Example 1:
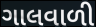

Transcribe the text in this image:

ગાલવાળી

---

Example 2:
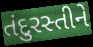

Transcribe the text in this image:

તંદુરસ્તીને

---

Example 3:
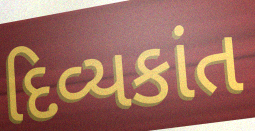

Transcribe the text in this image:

દિવ્યકાંત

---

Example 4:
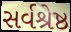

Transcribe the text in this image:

સર્વશ્રેષ્ઠ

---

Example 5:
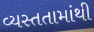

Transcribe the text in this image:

વ્યસ્તતામાંથી